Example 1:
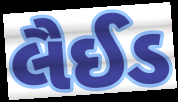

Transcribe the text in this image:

લૈઈડ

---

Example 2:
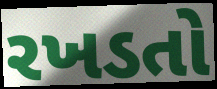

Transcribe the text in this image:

રખડતો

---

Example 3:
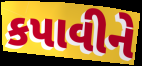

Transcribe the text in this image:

કપાવીને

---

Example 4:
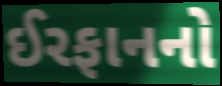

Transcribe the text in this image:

ઈરફાનનો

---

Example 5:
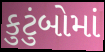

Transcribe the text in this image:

કુટુંબોમાં